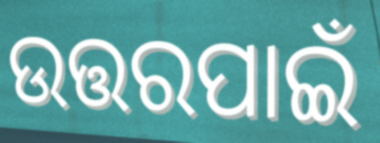
ଉତ୍ତରପାଇଁ